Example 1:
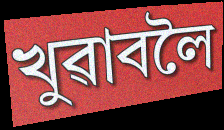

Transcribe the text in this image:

খুৱাবলৈ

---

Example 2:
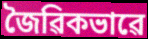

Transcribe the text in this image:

জৈৱিকভাৱে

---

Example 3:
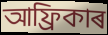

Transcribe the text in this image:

আফ্ৰিকাৰ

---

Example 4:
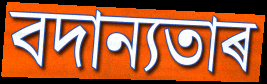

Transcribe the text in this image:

বদান্যতাৰ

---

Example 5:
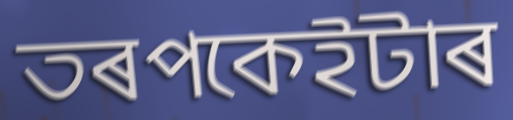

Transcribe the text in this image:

তৰপকেইটাৰ